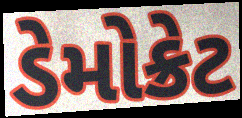
ડેમોક્રેટ